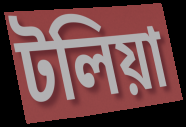
টলিয়া